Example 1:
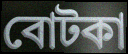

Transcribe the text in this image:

বোটকা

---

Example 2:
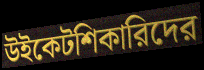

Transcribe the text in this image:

উইকেটশিকারিদের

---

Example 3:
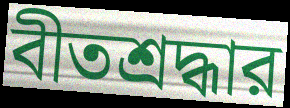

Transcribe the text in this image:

বীতশ্রদ্ধার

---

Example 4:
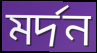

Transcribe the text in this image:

মর্দন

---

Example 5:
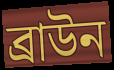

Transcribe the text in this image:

ব্রাউন